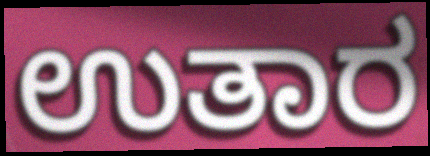
ಉತಾರ